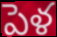
పెళ